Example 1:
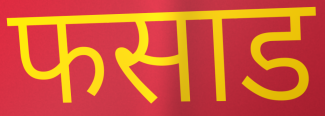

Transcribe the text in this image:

फसाड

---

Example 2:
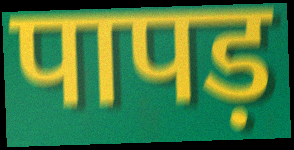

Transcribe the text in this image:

पापड़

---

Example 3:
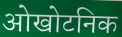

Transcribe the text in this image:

ओखोटनिक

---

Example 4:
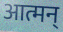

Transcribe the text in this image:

आत्मन्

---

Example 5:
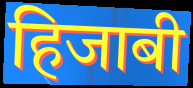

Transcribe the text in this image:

हिजाबी